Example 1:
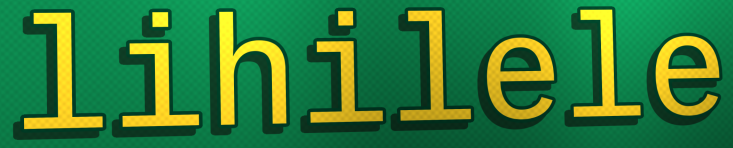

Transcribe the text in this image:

lihilele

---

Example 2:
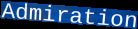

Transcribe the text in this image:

Admiration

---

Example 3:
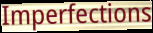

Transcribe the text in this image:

Imperfections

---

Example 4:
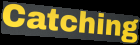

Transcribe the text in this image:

Catching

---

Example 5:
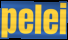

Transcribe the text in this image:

pelei